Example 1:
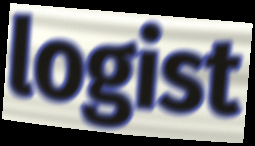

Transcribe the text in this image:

logist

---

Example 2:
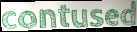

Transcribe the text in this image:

contused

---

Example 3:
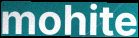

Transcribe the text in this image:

mohite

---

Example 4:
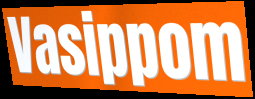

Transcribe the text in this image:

Vasippom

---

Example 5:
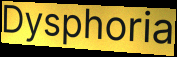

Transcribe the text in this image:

Dysphoria